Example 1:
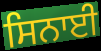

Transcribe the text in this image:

ਸਿਨਾਈ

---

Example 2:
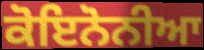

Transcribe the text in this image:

ਕੋਇਨੋਨੀਆ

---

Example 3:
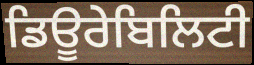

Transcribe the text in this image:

ਡਿਊਰੇਬਿਲਿਟੀ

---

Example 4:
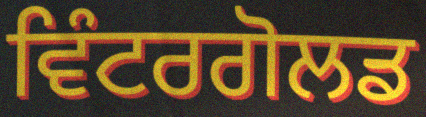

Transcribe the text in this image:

ਵਿੰਟਰਗੋਲਡ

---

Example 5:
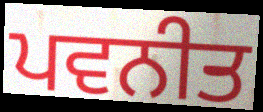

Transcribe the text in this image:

ਪਵਨੀਤ